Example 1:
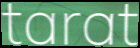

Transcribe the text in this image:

tarat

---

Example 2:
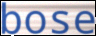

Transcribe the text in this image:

bose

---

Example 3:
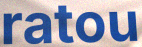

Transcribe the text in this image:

ratou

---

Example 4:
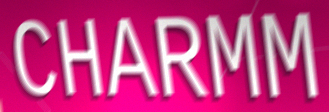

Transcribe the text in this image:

CHARMM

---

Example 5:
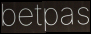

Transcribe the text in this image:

betpas